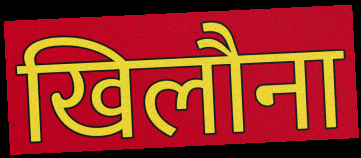
खिलौना